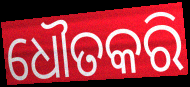
ଧୌତକରି